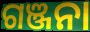
ଗଞ୍ଜନା